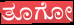
ತೂಗೋ